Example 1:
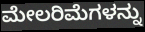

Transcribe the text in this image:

ಮೇಲರಿಮೆಗಳನ್ನು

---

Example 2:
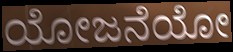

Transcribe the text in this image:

ಯೋಜನೆಯೋ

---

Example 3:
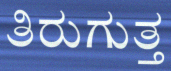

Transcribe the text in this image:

ತಿರುಗುತ್ತ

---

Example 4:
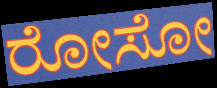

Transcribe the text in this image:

ರೋಸೋ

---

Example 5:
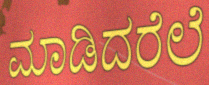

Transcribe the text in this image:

ಮಾಡಿದರೆಲೆ